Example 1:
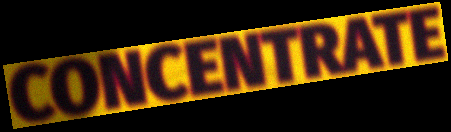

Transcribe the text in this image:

CONCENTRATE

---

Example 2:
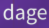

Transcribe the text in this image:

dage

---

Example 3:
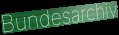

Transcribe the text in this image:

Bundesarchiv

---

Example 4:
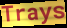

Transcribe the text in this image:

Trays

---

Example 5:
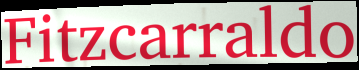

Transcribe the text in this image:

Fitzcarraldo